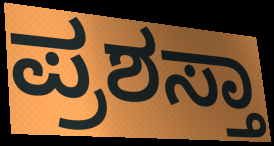
ಪ್ರಶಸ್ತಾ